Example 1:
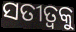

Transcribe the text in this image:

ସତୀତ୍ୱକୁ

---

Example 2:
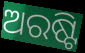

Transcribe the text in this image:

ଅରଷ୍ଟି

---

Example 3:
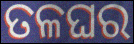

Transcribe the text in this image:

ତଳଘର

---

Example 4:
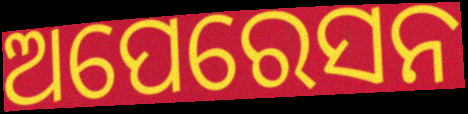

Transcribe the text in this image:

ଅପେରେସନ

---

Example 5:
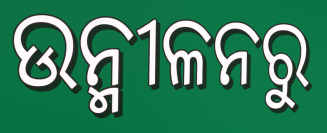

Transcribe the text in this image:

ଉନ୍ମୀଳନରୁ